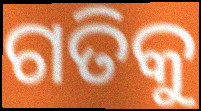
ଗତିକୁ